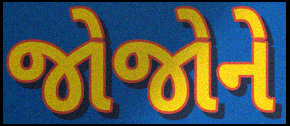
જોજોને